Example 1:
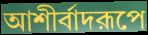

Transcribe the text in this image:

আশীর্বাদরূপে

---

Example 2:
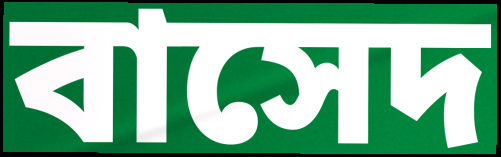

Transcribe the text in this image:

বাসেদ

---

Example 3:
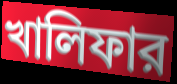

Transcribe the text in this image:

খালিফার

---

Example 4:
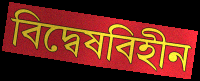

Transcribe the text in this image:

বিদ্বেষবিহীন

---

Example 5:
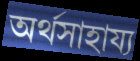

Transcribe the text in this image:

অর্থসাহায্য